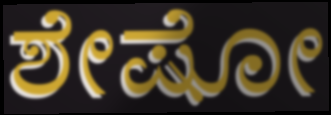
ಶೇಷೋ